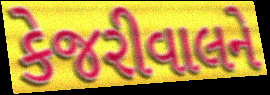
કેજરીવાલને